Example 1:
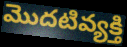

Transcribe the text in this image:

మొదటివ్యక్తి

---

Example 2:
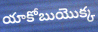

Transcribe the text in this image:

యాకోబుయొక్క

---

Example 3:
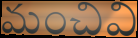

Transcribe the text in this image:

మంచివి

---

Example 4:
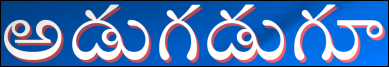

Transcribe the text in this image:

అడుగడుగూ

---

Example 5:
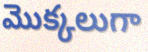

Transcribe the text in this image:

మొక్కలుగా